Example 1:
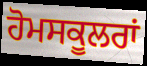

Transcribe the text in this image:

ਹੋਮਸਕੂਲਰਾਂ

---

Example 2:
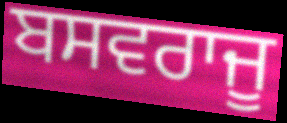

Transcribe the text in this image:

ਬਸਵਰਾਜੂ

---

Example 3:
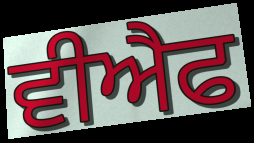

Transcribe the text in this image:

ਵੀਐਫ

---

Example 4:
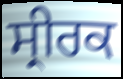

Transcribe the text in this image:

ਸ੍ਰੀਰਕ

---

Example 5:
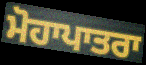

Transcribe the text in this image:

ਮੋਹਾਪਾਤਰਾ